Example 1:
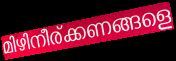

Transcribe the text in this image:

മിഴിനീര്ക്കണങ്ങളെ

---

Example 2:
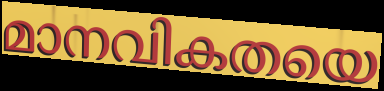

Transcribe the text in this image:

മാനവികതയെ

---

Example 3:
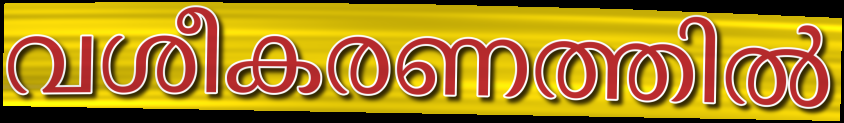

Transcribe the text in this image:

വശീകരണത്തിൽ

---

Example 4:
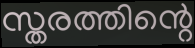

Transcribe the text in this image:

സ്തരത്തിന്റെ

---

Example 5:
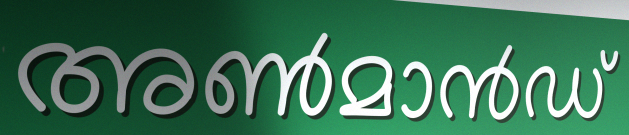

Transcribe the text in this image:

അൺമാൻഡ്